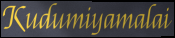
Kudumiyamalai